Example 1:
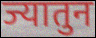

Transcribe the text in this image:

ज्यातुन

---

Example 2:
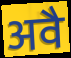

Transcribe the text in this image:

अवै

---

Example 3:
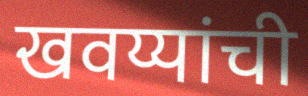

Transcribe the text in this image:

खवय्यांची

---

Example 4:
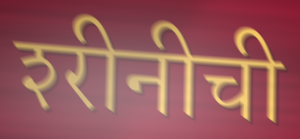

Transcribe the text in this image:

श्रीनीची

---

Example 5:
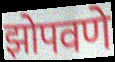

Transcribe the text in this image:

झोपवणे